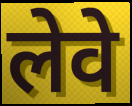
लेवे